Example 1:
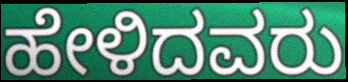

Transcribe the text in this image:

ಹೇಳಿದವರು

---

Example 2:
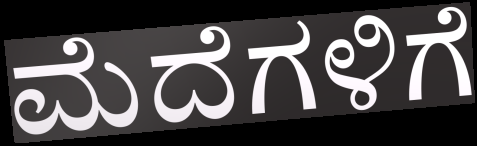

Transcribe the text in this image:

ಮೆದೆಗಳಿಗೆ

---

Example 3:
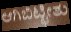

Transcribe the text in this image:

ಆಗಿಬಿಟ್ಟೀತು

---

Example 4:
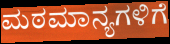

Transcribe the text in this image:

ಮಠಮಾನ್ಯಗಳಿಗೆ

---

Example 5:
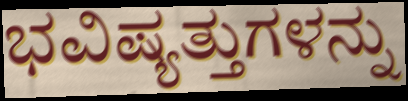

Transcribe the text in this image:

ಭವಿಷ್ಯತ್ತುಗಳನ್ನು